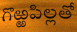
గొఱ్ఱపిల్లతో